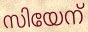
സിയേന്